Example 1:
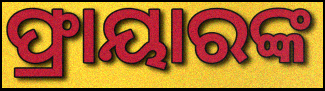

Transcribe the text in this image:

ଫ୍ରାୟାରଙ୍କ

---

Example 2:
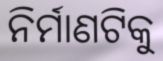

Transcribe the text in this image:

ନିର୍ମାଣଟିକୁ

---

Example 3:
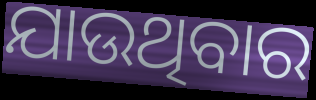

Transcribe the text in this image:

ଯାଉଥିବାର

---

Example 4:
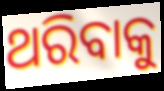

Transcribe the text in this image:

ଥରିବାକୁ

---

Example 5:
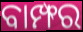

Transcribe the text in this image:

ବାମ୍ଫର